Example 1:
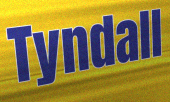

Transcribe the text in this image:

Tyndall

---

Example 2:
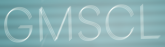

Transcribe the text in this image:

GMSCL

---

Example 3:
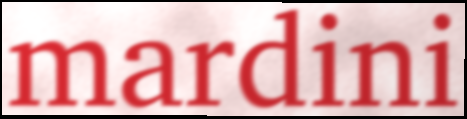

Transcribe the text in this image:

mardini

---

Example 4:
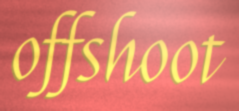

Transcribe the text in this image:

offshoot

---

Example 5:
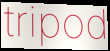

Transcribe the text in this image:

tripod